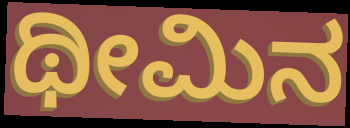
ಥೀಮಿನ